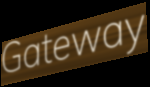
Gateway